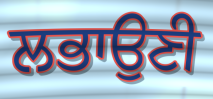
ਲਭਾਉਣੀ